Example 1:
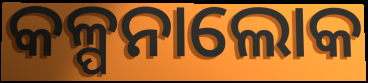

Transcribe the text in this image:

କଳ୍ପନାଲୋକ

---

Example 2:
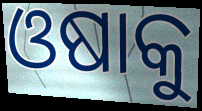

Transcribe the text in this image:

ଓଷାକୁ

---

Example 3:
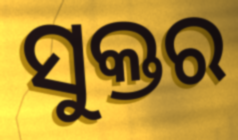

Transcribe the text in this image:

ସୁକ୍ତର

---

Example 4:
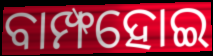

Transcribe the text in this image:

ବାମ୍ଫହୋଇ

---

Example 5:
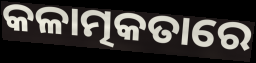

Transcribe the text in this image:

କଳାତ୍ମକତାରେ